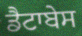
ਡੈਟਾਬੇਸ